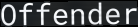
Offender